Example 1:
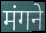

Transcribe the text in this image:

मंगने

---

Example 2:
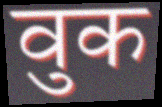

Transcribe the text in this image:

वुक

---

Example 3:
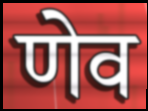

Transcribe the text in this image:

णेव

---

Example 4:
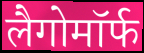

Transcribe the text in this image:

लैगोमॉर्फ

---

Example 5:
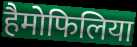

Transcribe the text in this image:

हैमोफिलिया